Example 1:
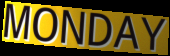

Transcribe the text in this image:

MONDAY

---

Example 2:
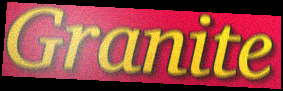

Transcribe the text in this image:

Granite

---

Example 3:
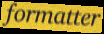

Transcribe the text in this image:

formatter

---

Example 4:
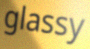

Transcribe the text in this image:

glassy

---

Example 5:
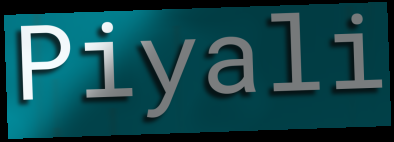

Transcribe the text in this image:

Piyali